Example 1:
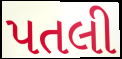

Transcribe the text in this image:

પતલી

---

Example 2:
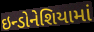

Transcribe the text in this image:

ઇન્ડોનેશિયામાં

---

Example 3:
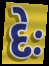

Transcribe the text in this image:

દેઃ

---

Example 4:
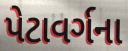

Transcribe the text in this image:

પેટાવર્ગના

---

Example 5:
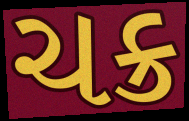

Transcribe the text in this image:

ચક્ર